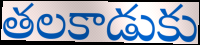
తలకాడుకు